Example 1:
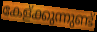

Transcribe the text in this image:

കേള്ക്കുന്നുണ്ട്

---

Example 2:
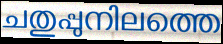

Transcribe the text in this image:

ചതുപ്പുനിലത്തെ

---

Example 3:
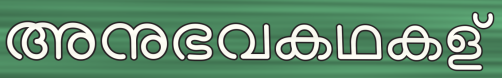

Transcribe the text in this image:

അനുഭവകഥകള്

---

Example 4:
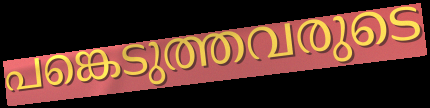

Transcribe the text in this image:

പങ്കെടുത്തവരുടെ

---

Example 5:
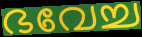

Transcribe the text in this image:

ഭവേച്ച